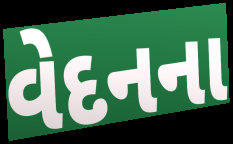
વેદનના